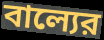
বাল্যের